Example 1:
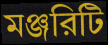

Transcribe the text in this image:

মঞ্জরিটি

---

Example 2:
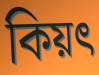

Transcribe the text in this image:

কিয়ৎ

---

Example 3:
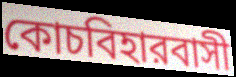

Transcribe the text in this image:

কোচবিহারবাসী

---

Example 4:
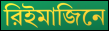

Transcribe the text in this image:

রিইমাজিনে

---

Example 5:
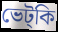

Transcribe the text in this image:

ভেট্কি